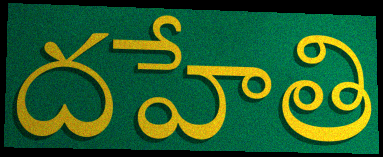
దహేతి